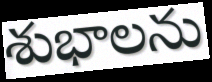
శుభాలను